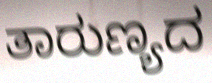
ತಾರುಣ್ಯದ